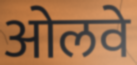
ओलवे